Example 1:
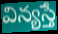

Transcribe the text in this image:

విన్యస్తే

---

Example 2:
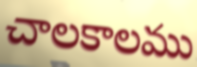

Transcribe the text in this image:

చాలకాలము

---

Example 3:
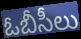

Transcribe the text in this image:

ఓబీసీలు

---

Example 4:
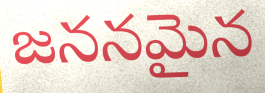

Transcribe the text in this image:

జననమైన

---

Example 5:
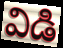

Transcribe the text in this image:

విడి